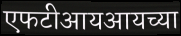
एफटीआयआयच्या